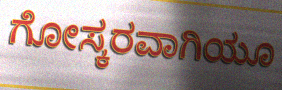
ಗೋಸ್ಕರವಾಗಿಯೂ